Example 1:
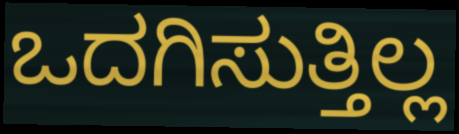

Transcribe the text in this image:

ಒದಗಿಸುತ್ತಿಲ್ಲ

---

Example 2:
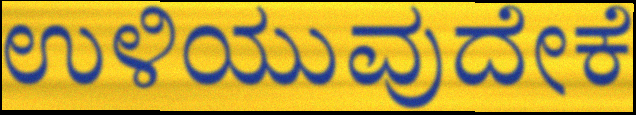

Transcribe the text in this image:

ಉಳಿಯುವುದೇಕೆ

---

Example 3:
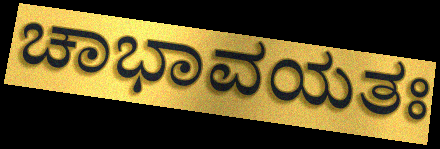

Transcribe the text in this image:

ಚಾಭಾವಯತಃ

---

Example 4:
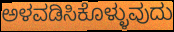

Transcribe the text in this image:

ಅಳವಡಿಸಿಕೊಳ್ಳುವುದು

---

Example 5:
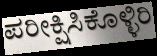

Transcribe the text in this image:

ಪರೀಕ್ಷಿಸಿಕೊಳ್ಳಿರಿ